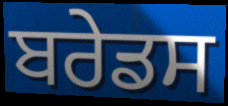
ਬਰੇਡਸ